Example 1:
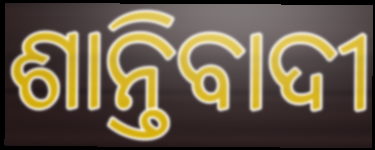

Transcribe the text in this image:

ଶାନ୍ତିବାଦୀ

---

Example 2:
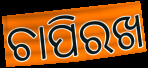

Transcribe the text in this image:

ଚାପିରଖ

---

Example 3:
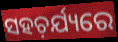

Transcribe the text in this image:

ସହଚ଼ର୍ଯ୍ୟରେ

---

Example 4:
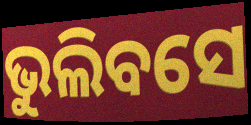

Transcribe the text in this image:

ଭୁଲିବସେ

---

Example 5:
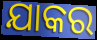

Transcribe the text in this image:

ଯାକର